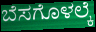
ಬೆಸಗೊಳಲ್ಕೆ